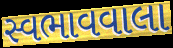
સ્વભાવવાલા